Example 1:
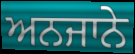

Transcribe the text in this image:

ਅਨਜਾਨੇ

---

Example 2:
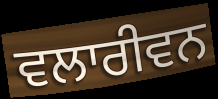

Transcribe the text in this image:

ਵਲਾਰੀਵਨ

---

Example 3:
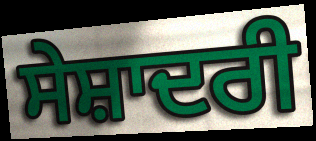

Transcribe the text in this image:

ਸੇਸ਼ਾਦਰੀ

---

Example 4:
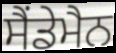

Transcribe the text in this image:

ਸੈਂਡੇਮੈਨ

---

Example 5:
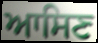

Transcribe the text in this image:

ਆਸਿਣ